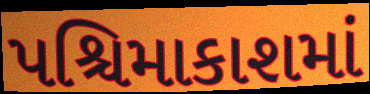
પશ્ચિમાકાશમાં